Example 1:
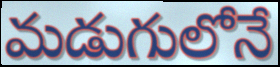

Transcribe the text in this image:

మడుగులోనే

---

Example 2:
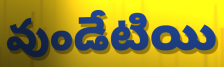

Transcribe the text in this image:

వుండేటియి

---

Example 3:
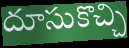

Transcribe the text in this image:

దూసుకొచ్చి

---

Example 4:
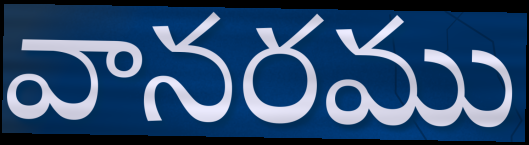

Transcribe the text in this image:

వానరము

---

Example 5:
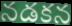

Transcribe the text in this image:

నడకన